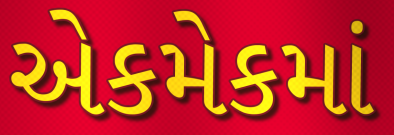
એકમેકમાં